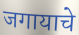
जगायाचे